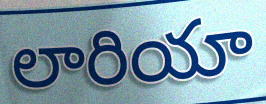
లారియా